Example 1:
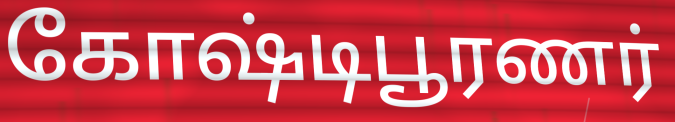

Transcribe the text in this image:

கோஷ்டிபூரணர்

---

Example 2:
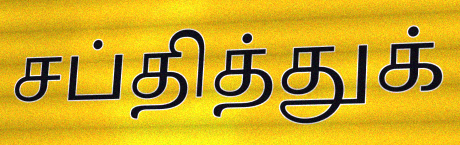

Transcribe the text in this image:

சப்தித்துக்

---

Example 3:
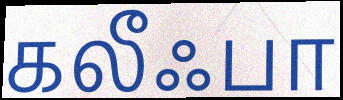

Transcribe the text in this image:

கலீஃபா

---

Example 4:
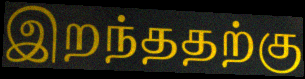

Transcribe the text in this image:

இறந்ததற்கு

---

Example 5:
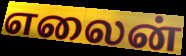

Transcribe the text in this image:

எலைன்